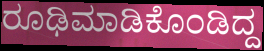
ರೂಢಿಮಾಡಿಕೊಂಡಿದ್ದ